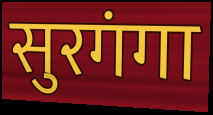
सुरगंगा